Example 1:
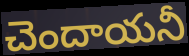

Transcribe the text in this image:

చెందాయనీ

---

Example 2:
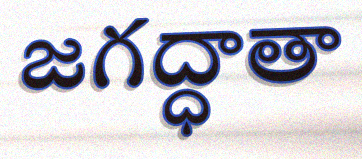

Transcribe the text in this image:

జగద్ధాతా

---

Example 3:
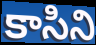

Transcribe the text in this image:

కాసిని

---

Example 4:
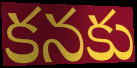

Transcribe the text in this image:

కనకు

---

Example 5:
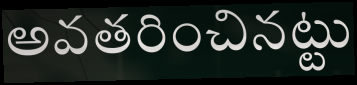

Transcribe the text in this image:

అవతరించినట్టు